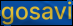
gosavi